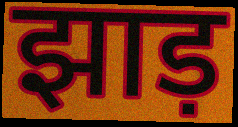
झाड़